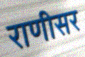
राणीसर